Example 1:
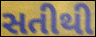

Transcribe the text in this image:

સતીથી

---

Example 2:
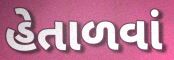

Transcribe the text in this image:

હેતાળવાં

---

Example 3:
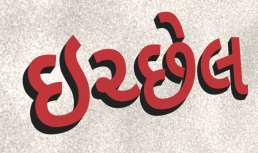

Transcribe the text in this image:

ઇચ્છેલ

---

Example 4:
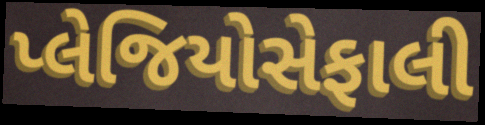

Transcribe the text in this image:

પ્લેજિયોસેફાલી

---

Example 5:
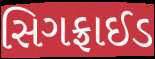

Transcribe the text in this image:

સિગફ્રાઈડ